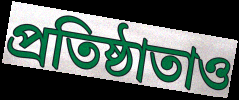
প্রতিষ্ঠাতাও